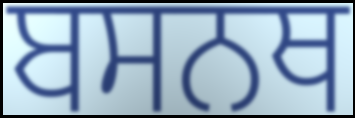
ਬਸਨਥ